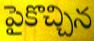
పైకొచ్చిన